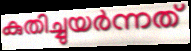
കുതിച്ചുയർന്നത്